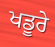
ਖਡੂਰੇ